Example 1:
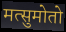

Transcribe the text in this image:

मत्सुमोतो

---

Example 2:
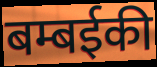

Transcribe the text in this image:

बम्बईकी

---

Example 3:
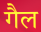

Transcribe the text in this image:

गैल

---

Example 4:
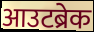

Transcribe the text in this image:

आउटब्रेक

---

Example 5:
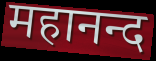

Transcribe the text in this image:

महानन्द